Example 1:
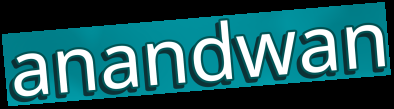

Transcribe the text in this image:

anandwan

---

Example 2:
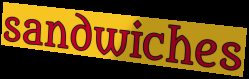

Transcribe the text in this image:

sandwiches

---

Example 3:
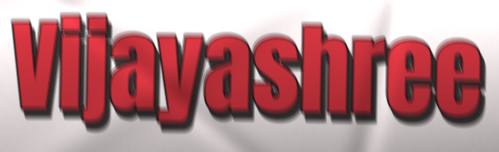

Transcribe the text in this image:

Vijayashree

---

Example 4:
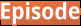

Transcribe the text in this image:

Episode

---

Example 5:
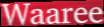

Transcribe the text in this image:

Waaree